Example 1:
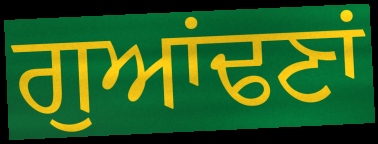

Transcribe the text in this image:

ਗੁਆਂਢਣਾਂ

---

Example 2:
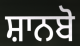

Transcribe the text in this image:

ਸ਼ਾਨਬੋ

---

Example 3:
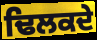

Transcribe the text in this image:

ਢਿਲਕਦੇ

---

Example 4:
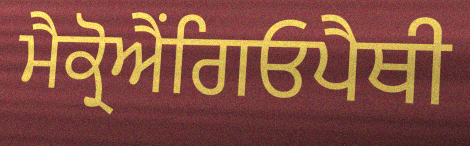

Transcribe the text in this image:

ਮੈਕ੍ਰੋਐਂਗਿਓਪੈਥੀ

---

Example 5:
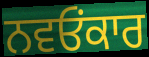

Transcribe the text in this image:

ਨਵਓਂਕਾਰ